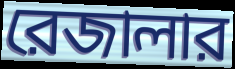
রেজালার